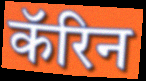
कॅरिन